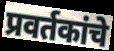
प्रवर्तकांचे